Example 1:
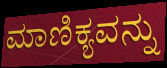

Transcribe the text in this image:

ಮಾಣಿಕ್ಯವನ್ನು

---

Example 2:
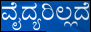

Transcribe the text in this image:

ವೈದ್ಯರಿಲ್ಲದೆ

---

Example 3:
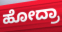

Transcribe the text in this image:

ಹೋದ್ರಾ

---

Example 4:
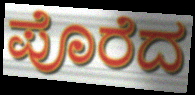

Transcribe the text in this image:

ಪೊರೆದ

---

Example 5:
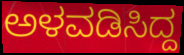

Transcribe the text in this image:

ಅಳವಡಿಸಿದ್ದ